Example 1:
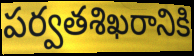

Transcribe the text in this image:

పర్వతశిఖరానికి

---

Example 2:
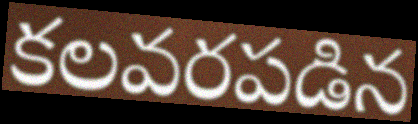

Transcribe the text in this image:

కలవరపడిన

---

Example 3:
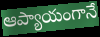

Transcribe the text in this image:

ఆప్యాయంగానే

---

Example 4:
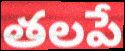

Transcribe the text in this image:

తలపే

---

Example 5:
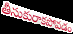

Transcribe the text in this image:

తీసుకురాకపోవడం